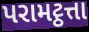
પરામટ્ઠત્તા